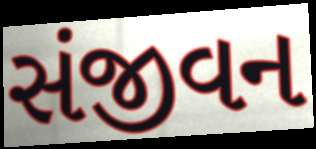
સંજીવન